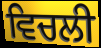
ਵਿਚਲੀ